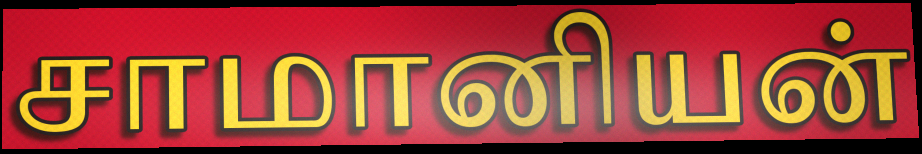
சாமானியன்